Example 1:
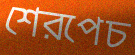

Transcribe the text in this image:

শেরপেচ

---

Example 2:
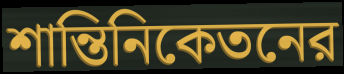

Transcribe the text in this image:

শান্তিনিকেতনের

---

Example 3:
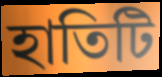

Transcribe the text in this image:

হাতিটি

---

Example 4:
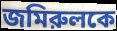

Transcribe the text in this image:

জমিরুলকে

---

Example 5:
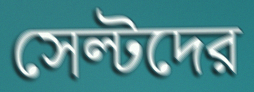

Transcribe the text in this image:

সেল্টদের